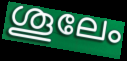
ശൂലേം